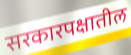
सरकारपक्षातील